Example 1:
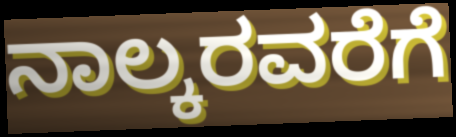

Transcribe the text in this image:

ನಾಲ್ಕರವರೆಗೆ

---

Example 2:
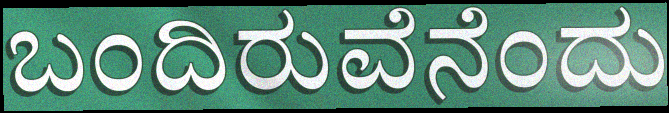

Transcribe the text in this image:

ಬಂದಿರುವೆನೆಂದು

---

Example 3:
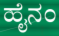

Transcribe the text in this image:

ಹೈನಂ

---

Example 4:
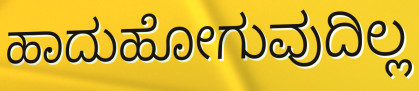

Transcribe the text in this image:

ಹಾದುಹೋಗುವುದಿಲ್ಲ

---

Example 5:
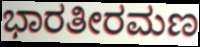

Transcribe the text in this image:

ಭಾರತೀರಮಣ